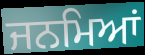
ਜਨਮਿਆਂ